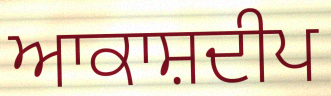
ਆਕਾਸ਼ਦੀਪ